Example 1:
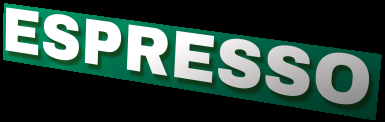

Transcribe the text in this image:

ESPRESSO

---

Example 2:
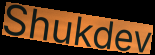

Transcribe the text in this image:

Shukdev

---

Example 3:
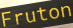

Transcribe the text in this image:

Fruton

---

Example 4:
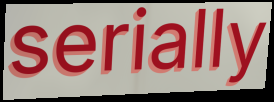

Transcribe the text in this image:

serially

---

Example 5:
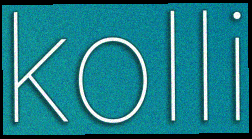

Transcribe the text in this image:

kolli